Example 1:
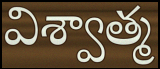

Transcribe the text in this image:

విశ్వాత్మ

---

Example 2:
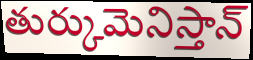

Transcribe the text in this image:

తుర్కుమెనిస్తాన్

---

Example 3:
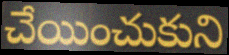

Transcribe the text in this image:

చేయించుకుని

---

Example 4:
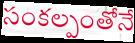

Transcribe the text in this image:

సంకల్పంతోనే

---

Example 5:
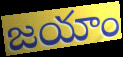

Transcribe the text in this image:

జయాం